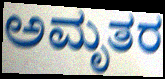
ಅಮೃತರ